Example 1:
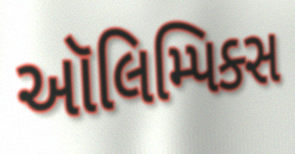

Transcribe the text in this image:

ઑલિમ્પિક્સ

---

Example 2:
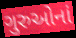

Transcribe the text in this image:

ગુરુઓનાં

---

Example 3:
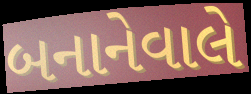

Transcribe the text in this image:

બનાનેવાલે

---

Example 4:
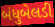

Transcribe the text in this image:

બંધુબેલડી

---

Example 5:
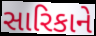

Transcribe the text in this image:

સારિકાને